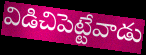
విడిచిపెట్టేవాడు